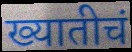
ख्यातीचं